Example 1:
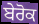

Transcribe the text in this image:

ਬੇਰੋਕ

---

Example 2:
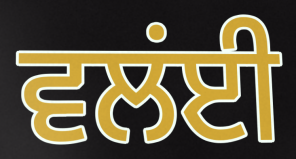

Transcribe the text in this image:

ਵਲਂਈ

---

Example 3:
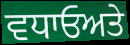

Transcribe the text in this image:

ਵਧਾਓਅਤੇ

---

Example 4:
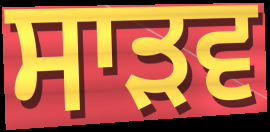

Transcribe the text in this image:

ਸਾੜਵ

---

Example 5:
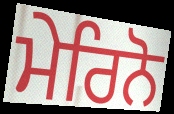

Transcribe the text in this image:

ਮੇਰਿਨੋ